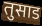
तुसाड